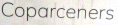
Coparceners